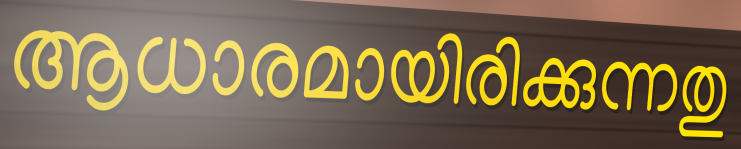
ആധാരമായിരിക്കുന്നതു